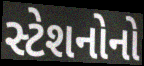
સ્ટેશનોનો